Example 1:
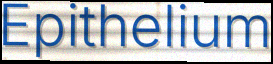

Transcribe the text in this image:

Epithelium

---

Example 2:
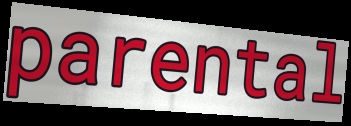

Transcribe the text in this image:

parental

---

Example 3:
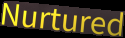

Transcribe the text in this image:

Nurtured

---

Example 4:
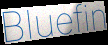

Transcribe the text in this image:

Bluefin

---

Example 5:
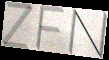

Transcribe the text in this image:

ZFN